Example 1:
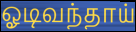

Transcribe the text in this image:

ஓடிவந்தாய்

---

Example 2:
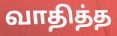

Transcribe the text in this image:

வாதித்த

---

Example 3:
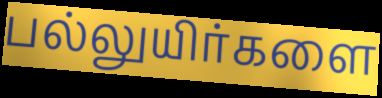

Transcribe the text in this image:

பல்லுயிர்களை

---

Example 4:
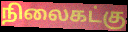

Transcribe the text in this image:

நிலைகட்கு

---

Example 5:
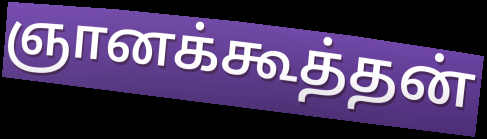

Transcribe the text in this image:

ஞானக்கூத்தன்